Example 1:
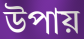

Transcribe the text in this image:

উপায়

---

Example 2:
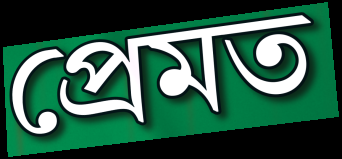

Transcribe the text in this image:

প্ৰেমত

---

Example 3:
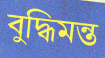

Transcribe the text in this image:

বুদ্ধিমন্ত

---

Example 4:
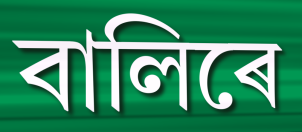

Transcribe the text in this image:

বালিৰে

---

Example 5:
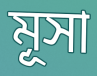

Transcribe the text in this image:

মূসা